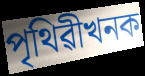
পৃথিৱীখনক